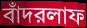
বাঁদরলাফ